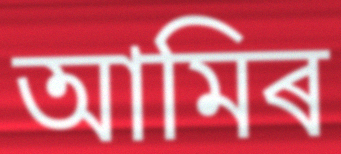
আমিৰ